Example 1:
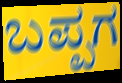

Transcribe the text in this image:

ಬಪ್ಪಗ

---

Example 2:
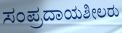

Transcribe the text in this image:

ಸಂಪ್ರದಾಯಶೀಲರು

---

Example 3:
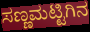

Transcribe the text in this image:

ಸಣ್ಣಮಟ್ಟಿಗಿನ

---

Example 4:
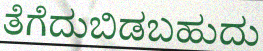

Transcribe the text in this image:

ತೆಗೆದುಬಿಡಬಹುದು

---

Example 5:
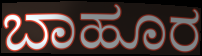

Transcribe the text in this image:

ಬಾಹೂರ